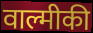
वाल्मीकी